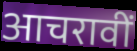
आचरावीं